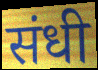
संधी